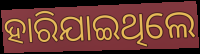
ହାରିଯାଇଥିଲେ